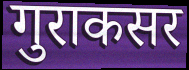
गुराकसर